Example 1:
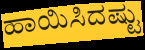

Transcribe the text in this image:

ಹಾಯಿಸಿದಷ್ಟು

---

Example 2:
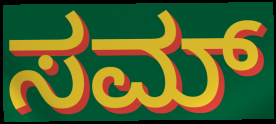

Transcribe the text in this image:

ಸಮ್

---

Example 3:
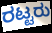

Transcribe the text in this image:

ರಟ್ಟರು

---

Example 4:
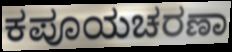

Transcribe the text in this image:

ಕಪೂಯಚರಣಾ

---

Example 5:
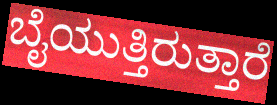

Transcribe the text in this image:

ಬೈಯುತ್ತಿರುತ್ತಾರೆ